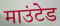
माउंटेड